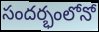
సందర్భంలోనో